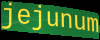
jejunum